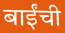
बाईंची